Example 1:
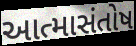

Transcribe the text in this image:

આત્માસંતોષ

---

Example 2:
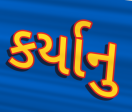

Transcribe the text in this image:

કર્યાનુ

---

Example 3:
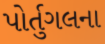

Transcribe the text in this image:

પોર્તુગલના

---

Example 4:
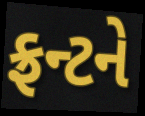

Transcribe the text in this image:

ફ્રન્ટને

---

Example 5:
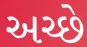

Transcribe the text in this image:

અચ્છે